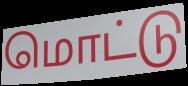
மொட்டு